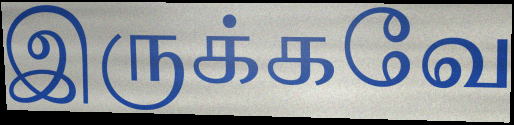
இருக்கவே